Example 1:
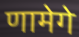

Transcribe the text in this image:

णामेगे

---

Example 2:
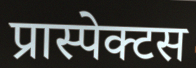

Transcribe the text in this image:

प्रास्पेक्टस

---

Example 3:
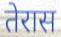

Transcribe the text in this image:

तेरास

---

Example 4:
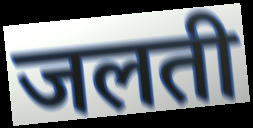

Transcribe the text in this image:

जलती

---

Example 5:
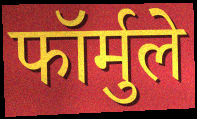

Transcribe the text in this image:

फॉर्मुले